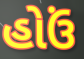
હોઉં